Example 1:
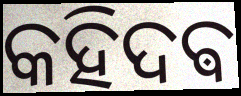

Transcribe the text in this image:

କହିଦଵ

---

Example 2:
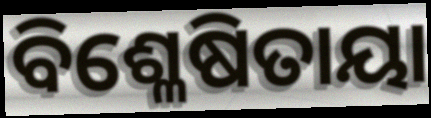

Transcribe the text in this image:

ବିଶ୍ଳେଷିତାୟା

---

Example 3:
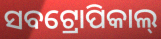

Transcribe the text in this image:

ସବଟ୍ରୋପିକାଲ୍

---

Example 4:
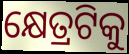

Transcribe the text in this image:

କ୍ଷେତ୍ରଟିକୁ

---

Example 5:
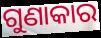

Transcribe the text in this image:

ଗୁଣାକାର